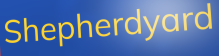
Shepherdyard